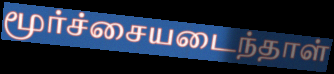
மூர்ச்சையடைந்தாள்